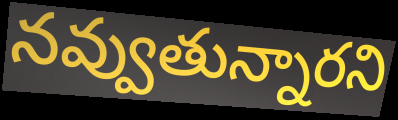
నవ్వుతున్నారని